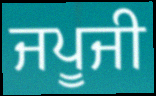
ਜਪੂਜੀ